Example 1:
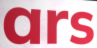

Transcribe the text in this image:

ars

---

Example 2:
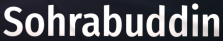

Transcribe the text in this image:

Sohrabuddin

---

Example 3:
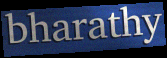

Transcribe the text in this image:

bharathy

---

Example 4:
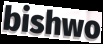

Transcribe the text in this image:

bishwo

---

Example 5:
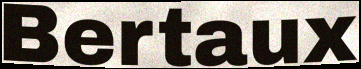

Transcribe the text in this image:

Bertaux